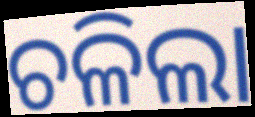
ଚଳିଲା